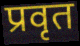
प्रवृत